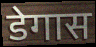
डेगास